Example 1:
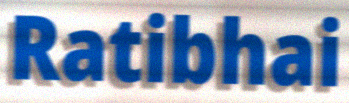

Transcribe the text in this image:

Ratibhai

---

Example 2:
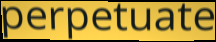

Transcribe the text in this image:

perpetuate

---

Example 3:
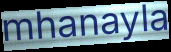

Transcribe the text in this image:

mhanayla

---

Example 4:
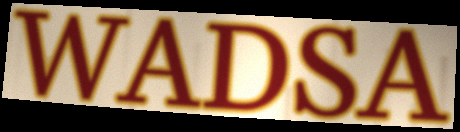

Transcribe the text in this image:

WADSA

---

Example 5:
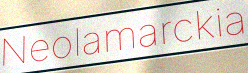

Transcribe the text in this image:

Neolamarckia